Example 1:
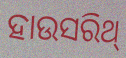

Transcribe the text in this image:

ହାଉସରିଥ୍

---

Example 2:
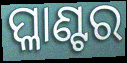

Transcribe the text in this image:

ପ୍ଳାଣ୍ଟର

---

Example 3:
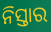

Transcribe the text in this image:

ନିସ୍ତାର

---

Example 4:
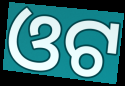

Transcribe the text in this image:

ଓଟ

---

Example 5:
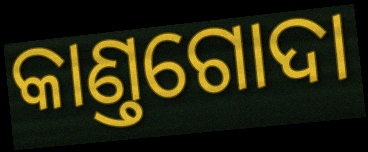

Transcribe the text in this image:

କାଣ୍ତଗୋଦା